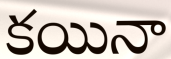
కయినా